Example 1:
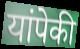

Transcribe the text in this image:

यांपेकी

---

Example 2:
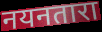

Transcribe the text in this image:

नयनतारा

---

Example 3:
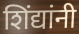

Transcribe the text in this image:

शिंद्यांनी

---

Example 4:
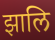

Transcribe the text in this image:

झालि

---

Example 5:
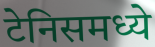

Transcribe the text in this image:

टेनिसमध्ये